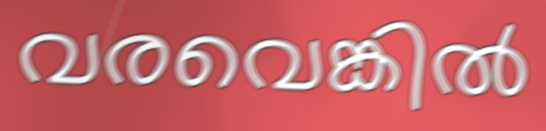
വരവെങ്കിൽ